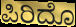
ಪಿರಿದೊ